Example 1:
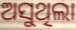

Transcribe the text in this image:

ଅସୁଥିଲା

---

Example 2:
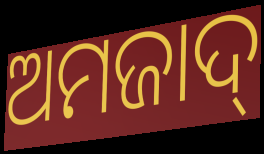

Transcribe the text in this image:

ଅମଜାଦ୍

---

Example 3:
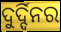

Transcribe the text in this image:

ଦୁର୍ଦ୍ଦିନର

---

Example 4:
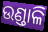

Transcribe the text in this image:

ଉଣ୍ଡାଳି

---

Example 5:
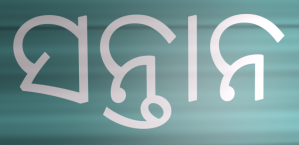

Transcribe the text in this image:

ସନ୍ତାନ